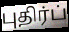
புதிர்ப்